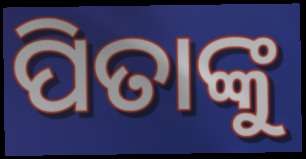
ପିତାଙ୍କୁ